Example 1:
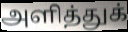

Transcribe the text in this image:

அளித்துக்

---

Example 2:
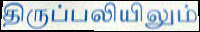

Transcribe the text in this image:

திருப்பலியிலும்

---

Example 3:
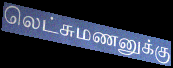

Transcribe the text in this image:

லெட்சுமணனுக்கு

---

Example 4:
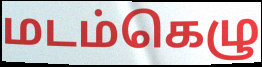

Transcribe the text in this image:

மடம்கெழு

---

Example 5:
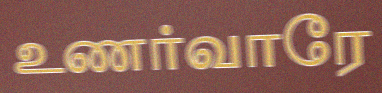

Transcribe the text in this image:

உணர்வாரே